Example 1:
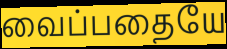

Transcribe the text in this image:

வைப்பதையே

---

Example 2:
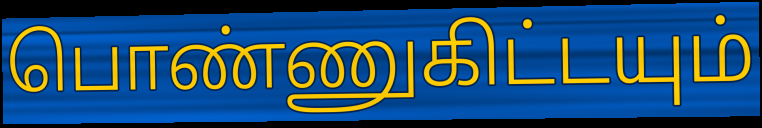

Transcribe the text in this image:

பொண்ணுகிட்டயும்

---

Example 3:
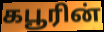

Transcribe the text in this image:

கபூரின்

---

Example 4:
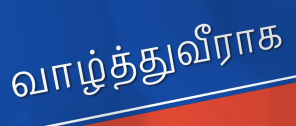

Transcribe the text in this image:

வாழ்த்துவீராக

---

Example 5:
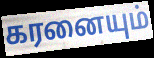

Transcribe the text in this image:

கரனையும்